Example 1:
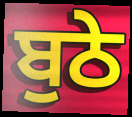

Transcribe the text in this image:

ਬੁਠੇ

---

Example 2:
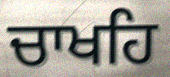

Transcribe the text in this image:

ਚਾਖਹਿ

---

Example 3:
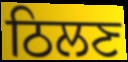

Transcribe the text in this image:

ਠਿਲਣ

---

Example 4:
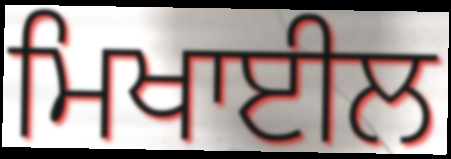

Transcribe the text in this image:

ਮਿਖਾਈਲ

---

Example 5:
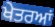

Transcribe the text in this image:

ਖੇਤਰਆਂ